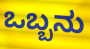
ಒಬ್ಬನು